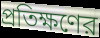
প্রতিক্ষণের